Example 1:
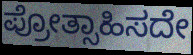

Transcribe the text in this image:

ಪ್ರೋತ್ಸಾಹಿಸದೇ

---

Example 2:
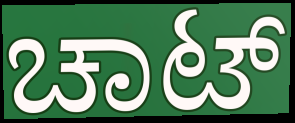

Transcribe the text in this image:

ಚಾಟ್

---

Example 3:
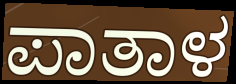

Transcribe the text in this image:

ಪಾತಾಳ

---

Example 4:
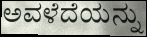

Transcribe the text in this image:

ಅವಳೆದೆಯನ್ನು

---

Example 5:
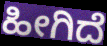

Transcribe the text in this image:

ಹೀಗಿದೆ